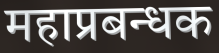
महाप्रबन्धक